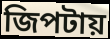
জিপটায়